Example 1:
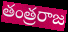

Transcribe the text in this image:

తంత్రరాజ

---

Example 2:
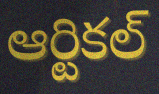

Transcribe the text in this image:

ఆర్టికల్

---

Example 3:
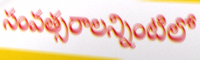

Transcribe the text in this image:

సంవత్సరాలన్నింటిలో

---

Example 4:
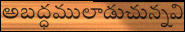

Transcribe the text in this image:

అబద్ధములాడుచున్నవి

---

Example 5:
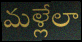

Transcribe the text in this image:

మళ్లేలా